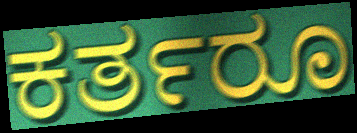
ಕರ್ತರೂ